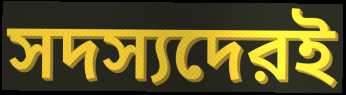
সদস্যদেরই